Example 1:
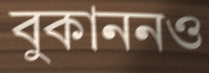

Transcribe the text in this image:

বুকাননও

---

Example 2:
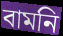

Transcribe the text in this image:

বামনি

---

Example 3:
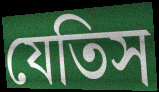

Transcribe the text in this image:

যেতিস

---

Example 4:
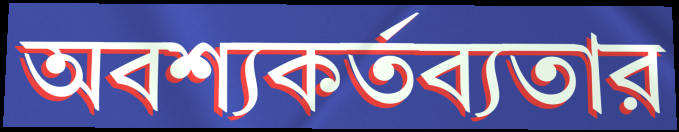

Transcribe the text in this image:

অবশ্যকর্তব্যতার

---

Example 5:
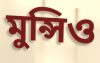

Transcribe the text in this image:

মুন্সিও